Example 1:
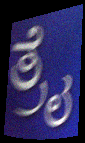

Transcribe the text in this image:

ತ್ರೈ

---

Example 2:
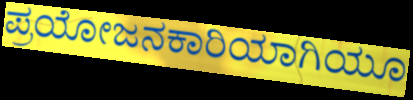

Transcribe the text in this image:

ಪ್ರಯೋಜನಕಾರಿಯಾಗಿಯೂ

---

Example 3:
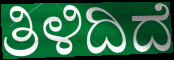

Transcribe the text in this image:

ತಿಳಿದಿದೆ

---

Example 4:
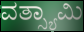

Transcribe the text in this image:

ವತ್ಸ್ಯಾಮಿ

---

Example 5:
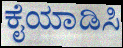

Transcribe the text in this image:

ಕೈಯಾಡಿಸಿ